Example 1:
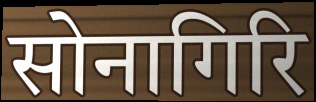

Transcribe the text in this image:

सोनागिरि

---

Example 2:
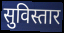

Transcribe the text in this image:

सुविस्तार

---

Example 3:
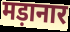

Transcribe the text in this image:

मड़ानार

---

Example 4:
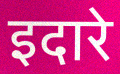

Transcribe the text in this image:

इदारे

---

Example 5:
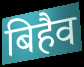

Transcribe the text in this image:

बिहैव